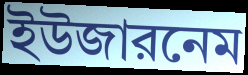
ইউজারনেম